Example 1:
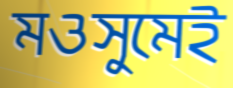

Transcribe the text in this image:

মওসুমেই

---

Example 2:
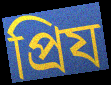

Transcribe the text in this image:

প্রিয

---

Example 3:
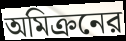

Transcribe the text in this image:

অমিক্রনের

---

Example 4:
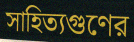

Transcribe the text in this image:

সাহিত্যগুণের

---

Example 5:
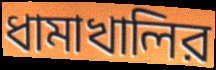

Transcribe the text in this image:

ধামাখালির